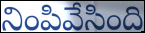
నింపివేసింది